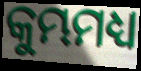
କୁମ୍ଭମଧ୍ୟ